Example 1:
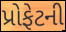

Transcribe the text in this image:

પ્રોફેટની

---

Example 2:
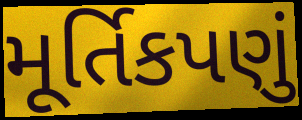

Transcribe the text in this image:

મૂર્તિકપણું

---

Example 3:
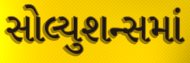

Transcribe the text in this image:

સોલ્યુશન્સમાં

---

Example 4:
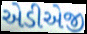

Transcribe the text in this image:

એડીએજી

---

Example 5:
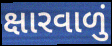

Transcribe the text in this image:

ક્ષારવાળું